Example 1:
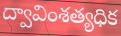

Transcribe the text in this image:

ద్వావింశత్యధిక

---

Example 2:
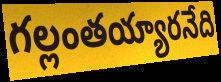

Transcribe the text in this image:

గల్లంతయ్యారనేది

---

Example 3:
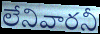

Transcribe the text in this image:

లేనివారనీ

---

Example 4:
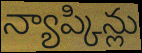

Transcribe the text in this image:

న్యాప్కిన్లు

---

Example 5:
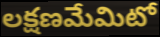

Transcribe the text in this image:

లక్షణమేమిటో